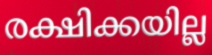
രക്ഷിക്കയില്ല